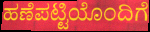
ಹಣೆಪಟ್ಟಿಯೊಂದಿಗೆ